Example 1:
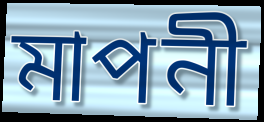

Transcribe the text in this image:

মাপনী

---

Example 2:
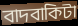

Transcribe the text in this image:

বাদবাকিটা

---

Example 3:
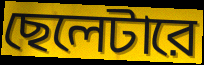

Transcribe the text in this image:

ছেলেটারে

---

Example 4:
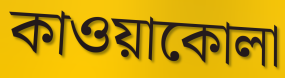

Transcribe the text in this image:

কাওয়াকোলা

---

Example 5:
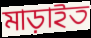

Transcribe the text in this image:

মাড়াইত